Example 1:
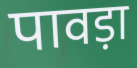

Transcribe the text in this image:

पावड़ा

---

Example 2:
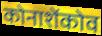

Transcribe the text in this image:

कोनाशेंकोव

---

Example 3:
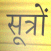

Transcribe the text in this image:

सूत्रों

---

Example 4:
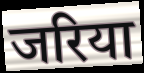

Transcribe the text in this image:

जरिया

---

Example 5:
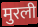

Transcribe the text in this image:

मुरली